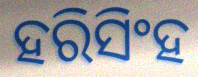
ହରିସିଂହ